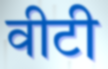
वीटी